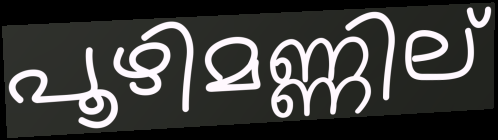
പൂഴിമണ്ണില്